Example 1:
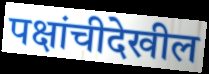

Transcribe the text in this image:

पक्षांचीदेखील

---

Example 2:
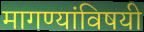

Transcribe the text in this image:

मागण्यांविषयी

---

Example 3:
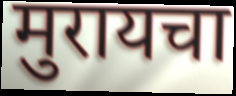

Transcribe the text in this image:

मुरायचा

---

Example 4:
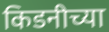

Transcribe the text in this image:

किडनीच्या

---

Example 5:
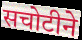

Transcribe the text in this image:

सचोटीने